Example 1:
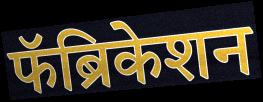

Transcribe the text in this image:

फॅब्रिकेशन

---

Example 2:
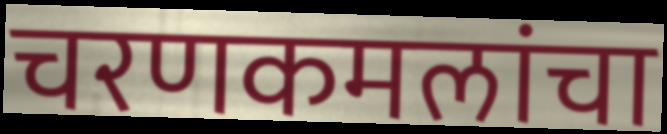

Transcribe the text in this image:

चरणकमलांचा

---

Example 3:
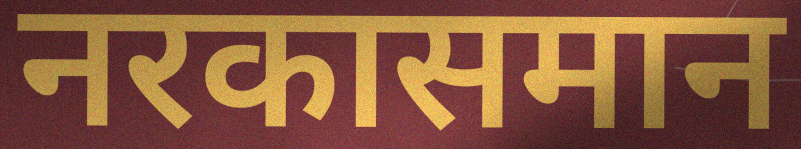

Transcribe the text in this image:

नरकासमान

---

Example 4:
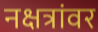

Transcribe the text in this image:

नक्षत्रांवर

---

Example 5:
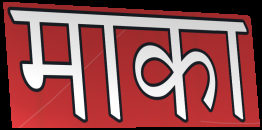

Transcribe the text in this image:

माका